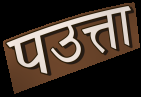
पउत्ता